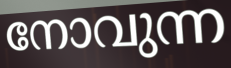
നോവുന്ന